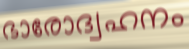
ഭാരോദ്വഹനം